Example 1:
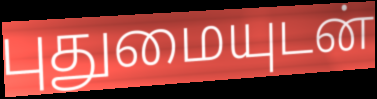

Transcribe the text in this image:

புதுமையுடன்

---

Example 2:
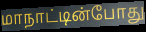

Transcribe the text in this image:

மாநாட்டின்போது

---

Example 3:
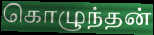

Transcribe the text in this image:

கொழுந்தன்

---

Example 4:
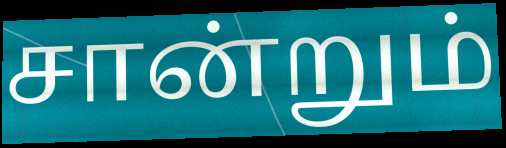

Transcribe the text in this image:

சான்றும்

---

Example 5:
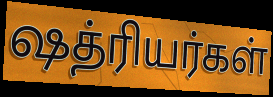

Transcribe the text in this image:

ஷத்ரியர்கள்